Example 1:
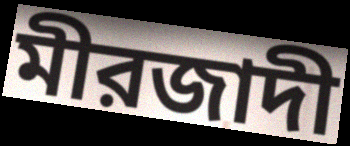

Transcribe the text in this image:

মীরজাদী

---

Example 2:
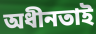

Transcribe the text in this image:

অধীনতাই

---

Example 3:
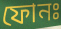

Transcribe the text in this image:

ফোনঃ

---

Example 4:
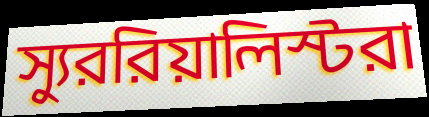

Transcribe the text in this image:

স্যুররিয়ালিস্টরা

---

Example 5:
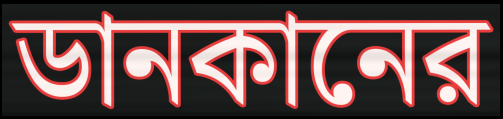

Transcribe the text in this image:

ডানকানের